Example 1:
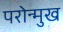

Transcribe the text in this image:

परोन्मुख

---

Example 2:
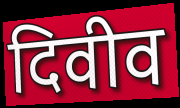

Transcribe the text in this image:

दिवीव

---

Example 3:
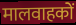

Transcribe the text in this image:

मालवाहकों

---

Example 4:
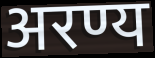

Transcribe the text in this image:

अरण्य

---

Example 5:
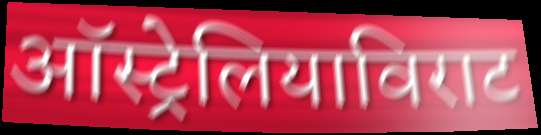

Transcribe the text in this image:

ऑस्ट्रेलियाविराट